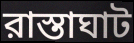
রাস্তাঘাট